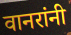
वानरांनी